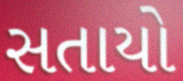
સતાયો